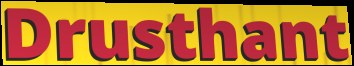
Drusthant